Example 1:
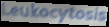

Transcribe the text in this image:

Leukocytosis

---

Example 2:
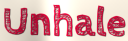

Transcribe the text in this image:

Unhale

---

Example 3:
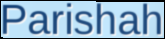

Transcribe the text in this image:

Parishah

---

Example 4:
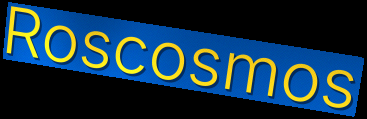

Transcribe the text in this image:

Roscosmos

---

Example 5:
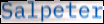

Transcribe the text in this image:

Salpeter